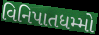
વિનિપાતધમ્મો